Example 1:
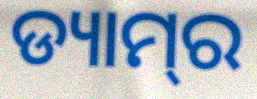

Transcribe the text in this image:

ଡ୍ୟାମ୍‍ର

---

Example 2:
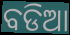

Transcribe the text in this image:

ବଡିଆ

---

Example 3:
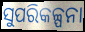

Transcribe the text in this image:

ସୁପରିକଳ୍ପନା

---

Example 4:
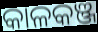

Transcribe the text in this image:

କାଳକଞ୍ଜ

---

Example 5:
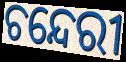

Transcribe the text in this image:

ଚନ୍ଦେରୀ